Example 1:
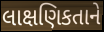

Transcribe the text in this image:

લાક્ષણિકતાને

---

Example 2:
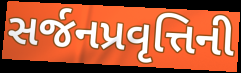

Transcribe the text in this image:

સર્જનપ્રવૃત્તિની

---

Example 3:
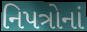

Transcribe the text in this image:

નિપત્રોનાં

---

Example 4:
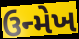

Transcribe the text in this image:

ઉન્મેખ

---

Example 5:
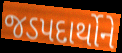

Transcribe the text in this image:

જડપદાર્થોને